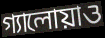
গ্যালোয়াও